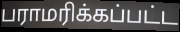
பராமரிக்கப்பட்ட